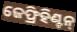
ଜେଫ୍ରିହିଣ୍ଟନ୍